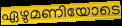
ഏഴുമണിയോടെ